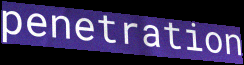
penetration